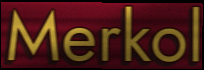
Merkol